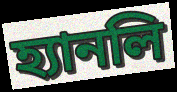
হ্যানলি